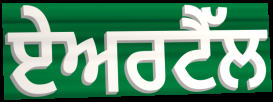
ਏਅਰਟੈੱਲ